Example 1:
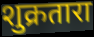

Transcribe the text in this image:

शुक्रतारा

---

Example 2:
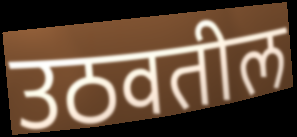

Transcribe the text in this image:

उठवतील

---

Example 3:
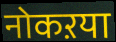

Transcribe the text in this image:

नोकऱया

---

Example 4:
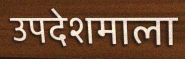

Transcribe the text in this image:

उपदेशमाला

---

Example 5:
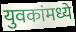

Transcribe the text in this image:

युवकांमध्ये